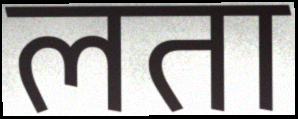
लता